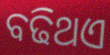
ବଢିଥଏ